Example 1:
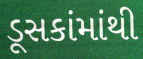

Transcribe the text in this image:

ડૂસકાંમાંથી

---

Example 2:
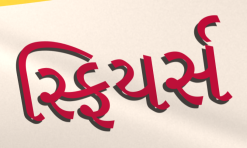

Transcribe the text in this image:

સ્ફિયર્સ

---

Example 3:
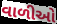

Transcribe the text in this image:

વાળીઓ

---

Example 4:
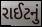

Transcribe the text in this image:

રાઈટનું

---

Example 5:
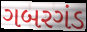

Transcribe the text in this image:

ગબરગંડ